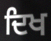
ਦਿਖ